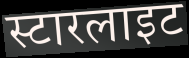
स्टारलाइट